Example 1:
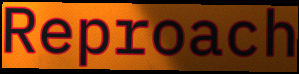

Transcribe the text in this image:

Reproach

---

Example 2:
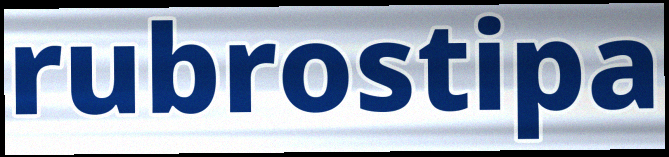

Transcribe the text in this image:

rubrostipa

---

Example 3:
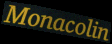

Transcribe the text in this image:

Monacolin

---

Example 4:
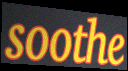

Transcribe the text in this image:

soothe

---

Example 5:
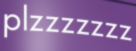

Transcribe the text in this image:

plzzzzzzz